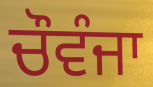
ਚੌਵੰਜਾ